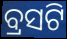
ବ୍ରସଟି